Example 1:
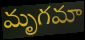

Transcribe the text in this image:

మృగమా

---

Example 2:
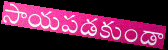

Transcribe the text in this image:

సాయపడకుండా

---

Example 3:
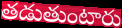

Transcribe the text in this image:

తడుతుంటారు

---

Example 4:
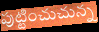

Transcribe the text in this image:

పుట్టించుచున్న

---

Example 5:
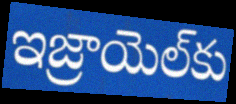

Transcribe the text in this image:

ఇజ్రాయెల్‌కు